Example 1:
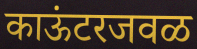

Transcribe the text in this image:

काऊंटरजवळ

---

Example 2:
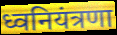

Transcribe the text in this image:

ध्वनियंत्रणा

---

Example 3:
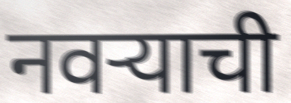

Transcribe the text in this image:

नवऱ्याची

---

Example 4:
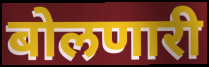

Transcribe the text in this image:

बोलणारी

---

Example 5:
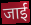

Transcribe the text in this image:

जाई